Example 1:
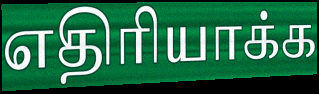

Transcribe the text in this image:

எதிரியாக்க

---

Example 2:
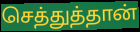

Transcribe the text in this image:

செத்துத்தான்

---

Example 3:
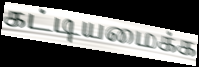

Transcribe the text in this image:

கட்டியமைக்க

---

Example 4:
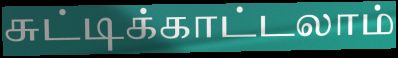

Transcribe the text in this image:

சுட்டிக்காட்டலாம்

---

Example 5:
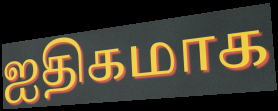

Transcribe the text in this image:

ஐதிகமாக